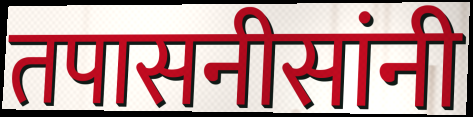
तपासनीसांनी